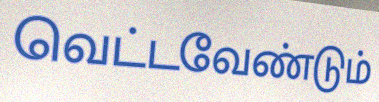
வெட்டவேண்டும்